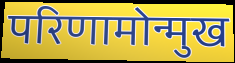
परिणामोन्मुख